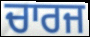
ਚਾਰਜ